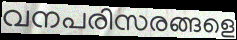
വനപരിസരങ്ങളെ